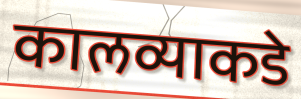
कालव्याकडे